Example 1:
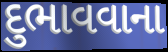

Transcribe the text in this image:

દુભાવવાના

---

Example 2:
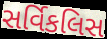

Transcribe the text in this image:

સર્વિકલિસ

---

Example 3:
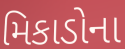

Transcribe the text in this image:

મિકાડોના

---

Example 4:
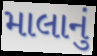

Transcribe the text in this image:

માલાનું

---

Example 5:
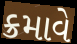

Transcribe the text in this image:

ક્રમાવે